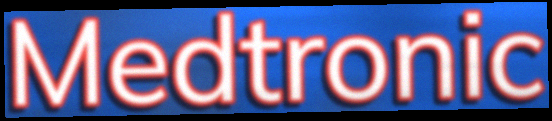
Medtronic